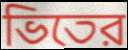
ভিতের